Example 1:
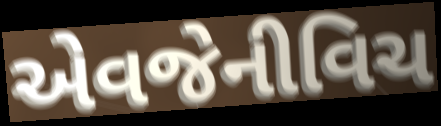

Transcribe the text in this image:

એવજેનીવિચ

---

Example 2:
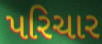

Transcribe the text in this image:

પરિચાર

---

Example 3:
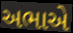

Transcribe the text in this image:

અભાએ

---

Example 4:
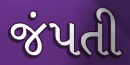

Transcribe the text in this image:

જંપતી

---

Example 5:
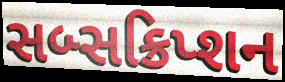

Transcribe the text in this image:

સબ્સક્રિપ્શન